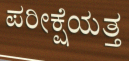
ಪರೀಕ್ಷೆಯತ್ತ